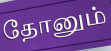
தோனும்